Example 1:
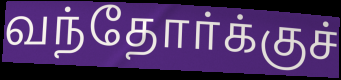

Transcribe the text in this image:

வந்தோர்க்குச்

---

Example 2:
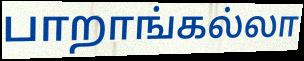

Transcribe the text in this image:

பாறாங்கல்லா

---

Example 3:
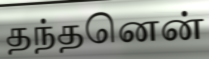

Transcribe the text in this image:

தந்தனென்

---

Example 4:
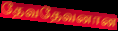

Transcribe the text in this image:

தேவதேவனான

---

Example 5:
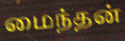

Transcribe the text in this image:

மைந்தன்